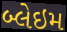
બ્લેઇમ